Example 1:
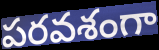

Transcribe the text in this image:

పరవశంగా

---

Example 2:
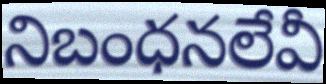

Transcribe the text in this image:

నిబంధనలేవీ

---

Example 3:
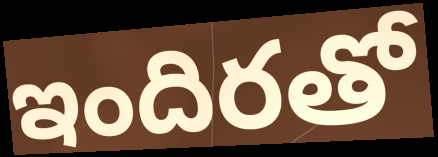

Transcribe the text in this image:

ఇందిరతో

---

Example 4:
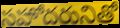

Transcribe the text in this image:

సహోదరునితో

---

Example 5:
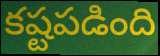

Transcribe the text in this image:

కష్టపడింది